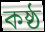
কষ্ঠ